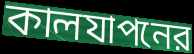
কালযাপনের